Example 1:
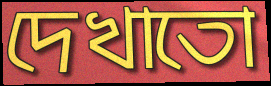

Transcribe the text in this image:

দেখাতো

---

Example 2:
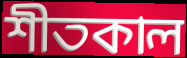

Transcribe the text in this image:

শীতকাল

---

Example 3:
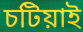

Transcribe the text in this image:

চটিয়াই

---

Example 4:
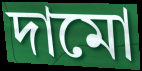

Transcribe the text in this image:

দামো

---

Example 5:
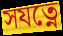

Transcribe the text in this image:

সযত্নে